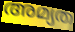
അമ്യത